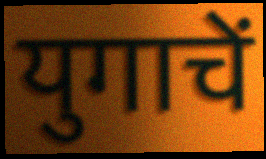
युगाचें